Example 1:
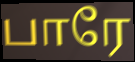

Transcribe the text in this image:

பாரே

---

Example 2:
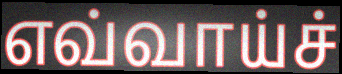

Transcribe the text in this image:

எவ்வாய்ச்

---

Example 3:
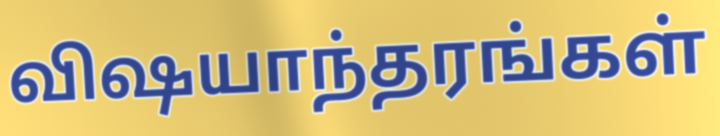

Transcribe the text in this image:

விஷயாந்தரங்கள்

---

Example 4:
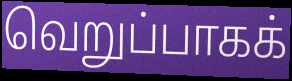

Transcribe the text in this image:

வெறுப்பாகக்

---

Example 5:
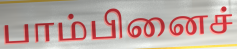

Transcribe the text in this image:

பாம்பினைச்